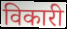
विकारी